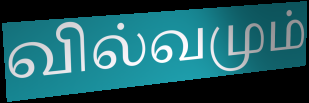
வில்வமும்